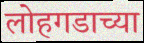
लोहगडाच्या